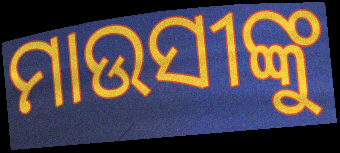
ମାଉସୀଙ୍କୁ